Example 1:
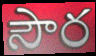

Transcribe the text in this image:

సౌర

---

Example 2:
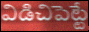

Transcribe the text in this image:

విడిచిపెట్టే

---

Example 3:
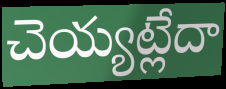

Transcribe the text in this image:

చెయ్యట్లేదా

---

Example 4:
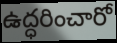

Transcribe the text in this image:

ఉద్ధరించారో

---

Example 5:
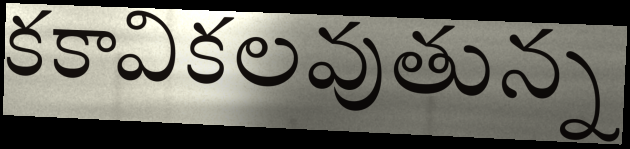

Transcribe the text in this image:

కకావికలవుతున్న